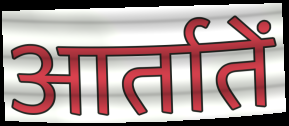
आर्तातें